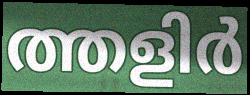
ത്തളിർ